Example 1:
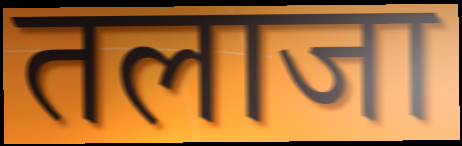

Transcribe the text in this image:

तलाजा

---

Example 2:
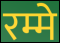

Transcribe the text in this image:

रम्मे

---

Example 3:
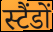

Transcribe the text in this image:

स्टैंडों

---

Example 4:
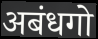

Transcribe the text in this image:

अबंधगो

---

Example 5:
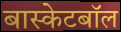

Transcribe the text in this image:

बास्‍केटबॉल